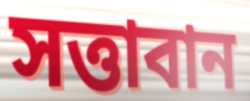
সত্তাবান